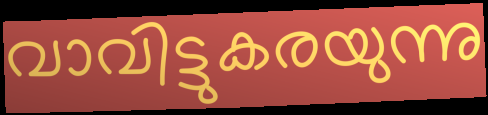
വാവിട്ടുകരയുന്നു